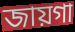
জায়গা